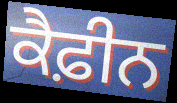
ਕੈਫ਼ੀਨ